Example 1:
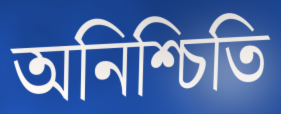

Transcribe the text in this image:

অনিশ্চিতি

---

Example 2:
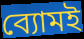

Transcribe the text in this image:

ব্যোমই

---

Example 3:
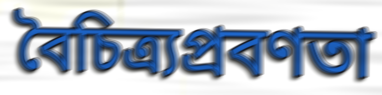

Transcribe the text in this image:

বৈচিত্র্যপ্রবণতা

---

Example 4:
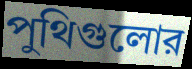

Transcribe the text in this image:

পুথিগুলোর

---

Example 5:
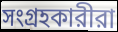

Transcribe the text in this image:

সংগ্রহকারীরা